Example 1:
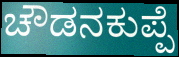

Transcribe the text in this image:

ಚೌಡನಕುಪ್ಪೆ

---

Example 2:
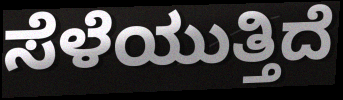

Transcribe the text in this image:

ಸೆಳೆಯುತ್ತಿದೆ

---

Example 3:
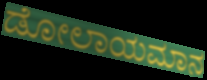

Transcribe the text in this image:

ಡೋಲಾಯಮಾನ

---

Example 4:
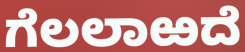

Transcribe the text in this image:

ಗೆಲಲಾಱದೆ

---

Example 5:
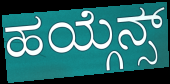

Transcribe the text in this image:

ಹಯ್ಗೆನ್ಸ್